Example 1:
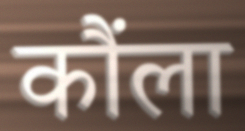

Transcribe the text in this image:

कौंला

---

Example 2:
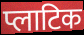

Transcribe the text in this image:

प्लाटिक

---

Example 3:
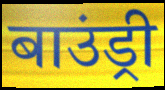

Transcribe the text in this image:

बाउंड्री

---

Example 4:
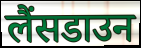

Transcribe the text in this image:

लैंसडाउन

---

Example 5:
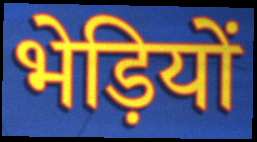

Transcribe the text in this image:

भेड़ियों